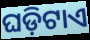
ଘଡ଼ିଟାଏ